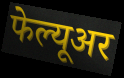
फेल्यूअर